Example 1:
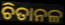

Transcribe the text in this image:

ଚିତାନଳ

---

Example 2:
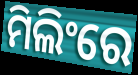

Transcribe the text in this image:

ମିଲିଂରେ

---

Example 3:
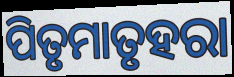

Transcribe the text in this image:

ପିତୃମାତୃହରା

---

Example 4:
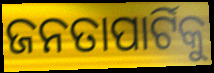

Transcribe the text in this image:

ଜନତାପାର୍ଟିକୁ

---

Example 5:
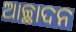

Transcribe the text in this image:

ଆଚ୍ଛାଦନ